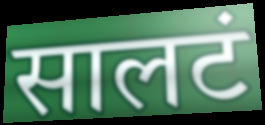
सालटं